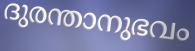
ദുരന്താനുഭവം